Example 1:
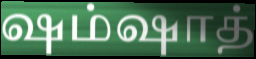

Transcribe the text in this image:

ஷம்ஷாத்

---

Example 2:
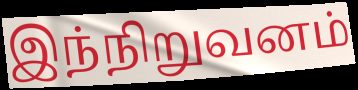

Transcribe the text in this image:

இந்நிறுவனம்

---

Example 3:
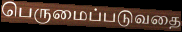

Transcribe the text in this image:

பெருமைப்படுவதை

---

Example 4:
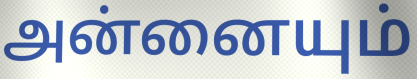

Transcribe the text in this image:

அன்னையும்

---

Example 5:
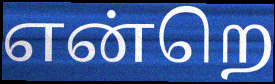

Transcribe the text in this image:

என்றெ